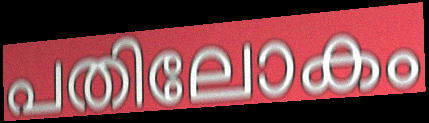
പതിലോകം